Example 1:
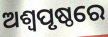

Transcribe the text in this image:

ଅଶ୍ୱପୃଷ୍ଠରେ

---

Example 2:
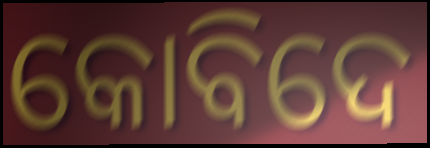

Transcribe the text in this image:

କୋବିଦେ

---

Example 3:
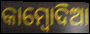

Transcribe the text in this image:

କାମ୍ବୋଦିଆ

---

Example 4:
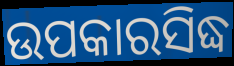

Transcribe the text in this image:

ଉପକାରସିଦ୍ଧ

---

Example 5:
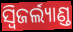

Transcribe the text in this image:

ସ୍ୱିଜର୍ଲ୍ୟାଣ୍ଡ